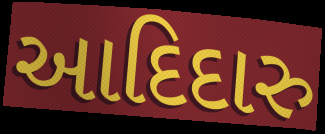
આદિદારુ